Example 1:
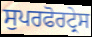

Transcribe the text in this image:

ਸੁਪਰਫੋਰਟ੍ਰੇਸ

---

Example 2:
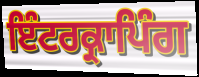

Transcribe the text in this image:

ਇੰਟਰਕ੍ਰਾਪਿੰਗ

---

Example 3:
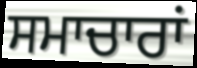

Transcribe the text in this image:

ਸਮਾਚਾਰਾਂ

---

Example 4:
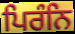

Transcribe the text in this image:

ਪਿਰੰਨਿ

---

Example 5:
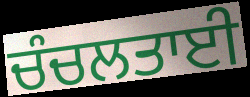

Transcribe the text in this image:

ਚੰਚਲਤਾਈ